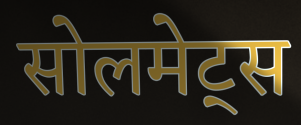
सोलमेट्स